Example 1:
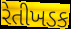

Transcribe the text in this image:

રેતીખડક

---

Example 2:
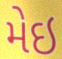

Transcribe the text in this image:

મેઇ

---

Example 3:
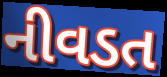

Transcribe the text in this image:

નીવડત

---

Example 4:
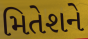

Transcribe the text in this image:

મિતેશને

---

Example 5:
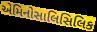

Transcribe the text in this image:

એમિનોસાલિસિલિક